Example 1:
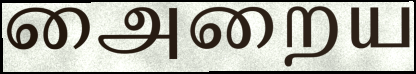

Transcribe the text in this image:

அைறைய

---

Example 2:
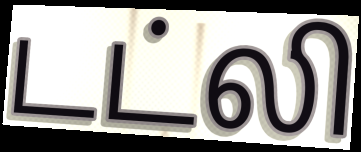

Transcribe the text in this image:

டட்லி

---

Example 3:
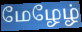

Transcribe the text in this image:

மேழேழ்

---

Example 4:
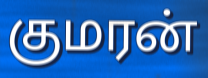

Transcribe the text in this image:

குமரன்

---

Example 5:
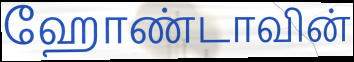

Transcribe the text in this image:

ஹோண்டாவின்